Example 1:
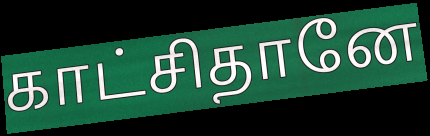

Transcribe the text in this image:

காட்சிதானே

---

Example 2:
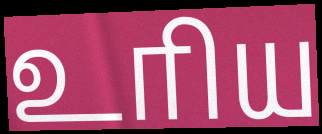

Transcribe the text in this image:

உரிய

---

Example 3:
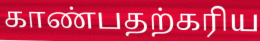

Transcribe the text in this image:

காண்பதற்கரிய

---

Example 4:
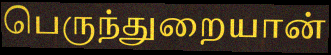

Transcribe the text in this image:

பெருந்துறையான்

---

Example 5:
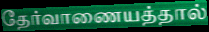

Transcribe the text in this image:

தேர்வாணையத்தால்